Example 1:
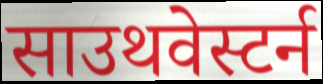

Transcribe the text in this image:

साउथवेस्टर्न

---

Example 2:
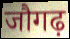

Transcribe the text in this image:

जौगढ़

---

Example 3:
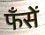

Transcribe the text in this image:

फँसें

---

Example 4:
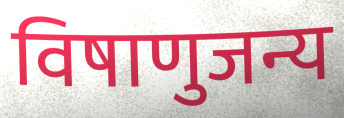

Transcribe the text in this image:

विषाणुजन्य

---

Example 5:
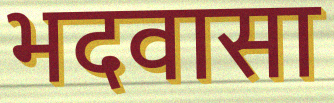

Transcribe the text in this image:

भदवासा